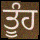
ਤੂੰਹ